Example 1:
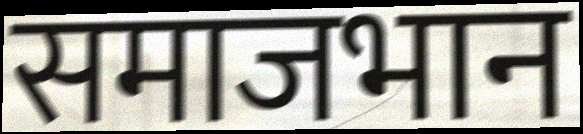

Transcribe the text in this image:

समाजभान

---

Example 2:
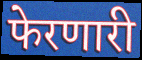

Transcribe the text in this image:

फेरणारी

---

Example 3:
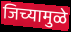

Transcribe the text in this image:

जिच्यामुळे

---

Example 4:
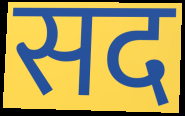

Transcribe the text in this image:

सद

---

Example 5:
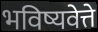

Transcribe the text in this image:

भविष्यवेत्ते